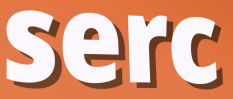
serc